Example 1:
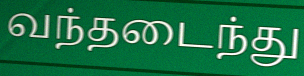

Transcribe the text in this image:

வந்தடைந்து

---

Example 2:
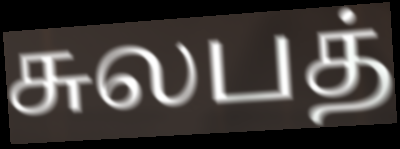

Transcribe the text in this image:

சுலபத்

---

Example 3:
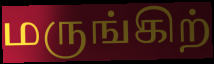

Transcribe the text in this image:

மருங்கிற்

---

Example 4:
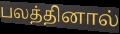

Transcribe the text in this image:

பலத்தினால்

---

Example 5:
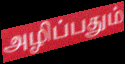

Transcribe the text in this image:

அழிப்பதும்